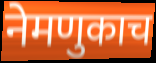
नेमणुकाच